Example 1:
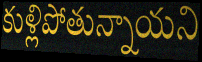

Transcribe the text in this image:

కుళ్లిపోతున్నాయని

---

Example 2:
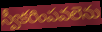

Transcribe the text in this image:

స్వీకరింపవలెను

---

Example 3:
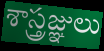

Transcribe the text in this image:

శాస్త్రజ్ఞులు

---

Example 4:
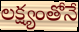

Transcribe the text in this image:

లక్ష్యంతోనే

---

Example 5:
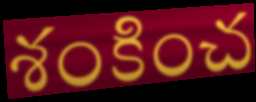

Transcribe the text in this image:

శంకించ